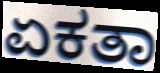
ಏಕತಾ